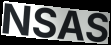
NSAS